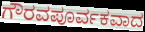
ಗೌರವಪೂರ್ವಕವಾದ